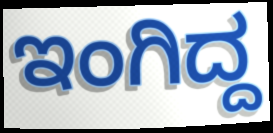
ಇಂಗಿದ್ದ